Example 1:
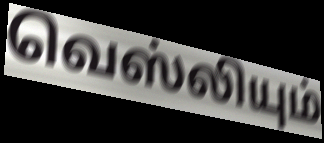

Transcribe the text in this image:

வெஸ்லியும்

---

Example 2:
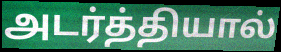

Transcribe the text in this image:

அடர்த்தியால்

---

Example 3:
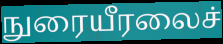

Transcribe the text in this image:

நுரையீரலைச்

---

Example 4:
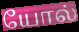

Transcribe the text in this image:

யோல்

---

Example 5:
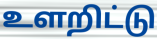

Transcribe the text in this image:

உளறிட்டு